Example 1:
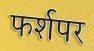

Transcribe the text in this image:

फर्शपर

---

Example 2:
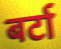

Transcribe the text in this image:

बर्टा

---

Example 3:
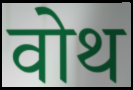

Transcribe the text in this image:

वोथ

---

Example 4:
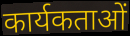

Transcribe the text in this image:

कार्यकताओं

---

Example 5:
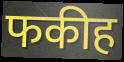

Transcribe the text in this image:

फकीह